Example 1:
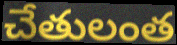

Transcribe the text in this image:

చేతులంత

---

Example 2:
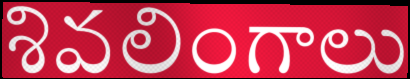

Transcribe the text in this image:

శివలింగాలు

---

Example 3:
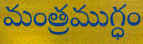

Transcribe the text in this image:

మంత్రముగ్ధం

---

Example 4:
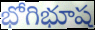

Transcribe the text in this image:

భోగిభూష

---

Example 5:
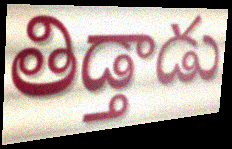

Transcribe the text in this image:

తిడ్తాడు